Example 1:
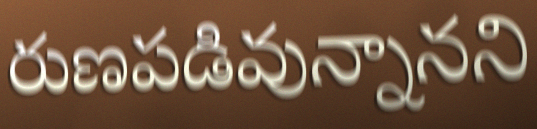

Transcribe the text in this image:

రుణపడివున్నానని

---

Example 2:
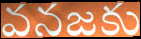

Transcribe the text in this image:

వనజకు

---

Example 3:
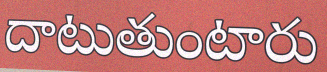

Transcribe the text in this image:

దాటుతుంటారు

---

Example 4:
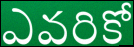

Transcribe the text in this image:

ఎవరికో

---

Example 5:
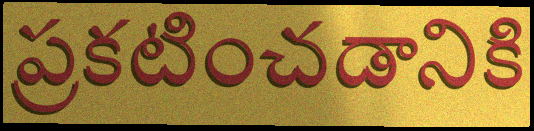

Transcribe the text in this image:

ప్రకటించడానికి